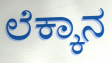
ಲೆಕ್ಕಾನ